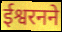
ईश्वरनने